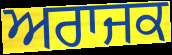
ਅਰਾਜਕ